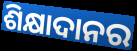
ଶିକ୍ଷାଦାନର